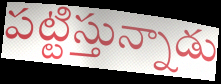
పట్టిస్తున్నాడు